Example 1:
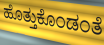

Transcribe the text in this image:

ಹೊತ್ತುಕೊಂಡಂತೆ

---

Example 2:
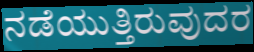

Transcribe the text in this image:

ನಡೆಯುತ್ತಿರುವುದರ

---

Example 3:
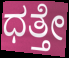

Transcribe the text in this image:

ಧತ್ತೇ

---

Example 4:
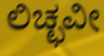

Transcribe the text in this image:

ಲಿಚ್ಛವೀ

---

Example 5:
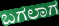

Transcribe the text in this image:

ಬಗಲಾಗ